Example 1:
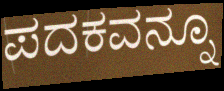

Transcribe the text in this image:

ಪದಕವನ್ನೂ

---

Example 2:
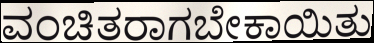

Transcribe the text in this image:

ವಂಚಿತರಾಗಬೇಕಾಯಿತು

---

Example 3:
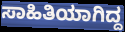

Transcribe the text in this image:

ಸಾಹಿತಿಯಾಗಿದ್ದ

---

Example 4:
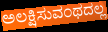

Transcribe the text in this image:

ಅಲಕ್ಷಿಸುವಂಥದಲ್ಲ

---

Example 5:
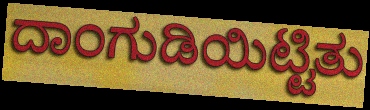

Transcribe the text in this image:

ದಾಂಗುಡಿಯಿಟ್ಟಿತು